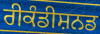
ਰੀਕੰਡੀਸ਼ਨਡ